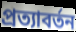
প্রত্যাবর্তন